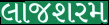
લાજશરમ